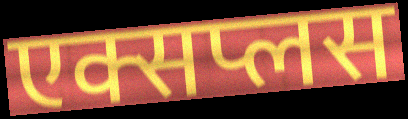
एक्सप्लस